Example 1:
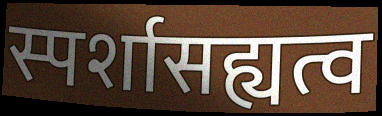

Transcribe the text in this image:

स्पर्शासह्यत्व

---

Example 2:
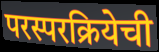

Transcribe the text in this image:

परस्परक्रियेची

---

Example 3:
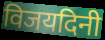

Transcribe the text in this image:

विजयदिनी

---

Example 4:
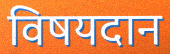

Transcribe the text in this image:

विषयदान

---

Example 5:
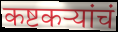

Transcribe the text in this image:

कष्टकऱ्यांचं